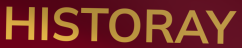
HISTORAY